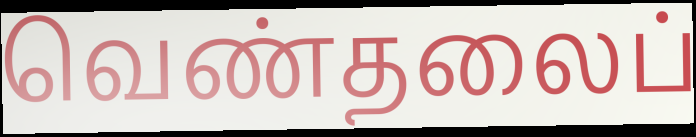
வெண்தலைப்